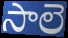
సాలె